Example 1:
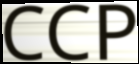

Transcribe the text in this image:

CCP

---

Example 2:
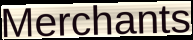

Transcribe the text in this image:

Merchants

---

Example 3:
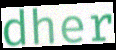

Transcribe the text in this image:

dher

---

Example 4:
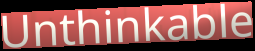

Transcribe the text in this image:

Unthinkable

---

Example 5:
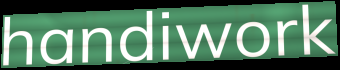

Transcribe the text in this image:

handiwork